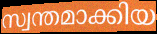
സ്വന്തമാക്കിയ